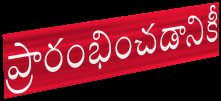
ప్రారంభించడానికీ